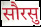
सौरसु